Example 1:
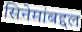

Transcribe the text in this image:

सिनेमांबद्दल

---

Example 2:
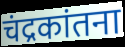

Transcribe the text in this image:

चंद्रकांतना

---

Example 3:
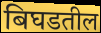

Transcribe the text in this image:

बिघडतील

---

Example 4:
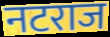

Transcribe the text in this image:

नटराज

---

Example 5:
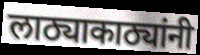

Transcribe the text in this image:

लाठ्याकाठ्यांनी